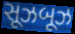
સૂઝબૂઝ